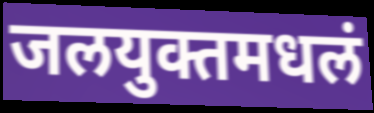
जलयुक्तमधलं